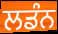
ਲਡੰਨ